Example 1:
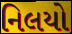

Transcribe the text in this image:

નિલયો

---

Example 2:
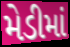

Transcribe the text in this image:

મેડીમાં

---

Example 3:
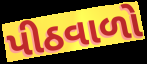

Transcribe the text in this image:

પીઠવાળો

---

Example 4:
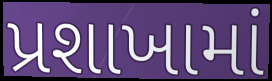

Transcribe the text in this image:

પ્રશાખામાં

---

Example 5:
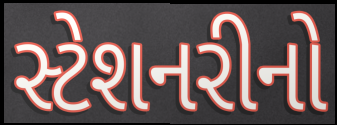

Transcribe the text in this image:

સ્ટેશનરીનો